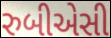
રુબીએસી